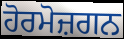
ਹੋਰਮੋਜ਼ਗਨ